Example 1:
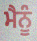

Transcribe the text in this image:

ਮੈਨੂੰ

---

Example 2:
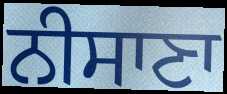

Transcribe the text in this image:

ਨੀਸਾਣਾ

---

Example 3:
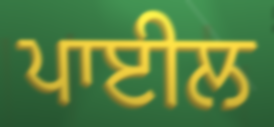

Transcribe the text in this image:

ਪਾਈਲ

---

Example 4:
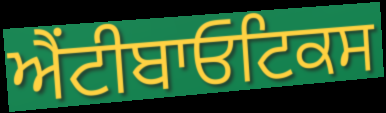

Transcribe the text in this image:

ਐਂਟੀਬਾਓਟਿਕਸ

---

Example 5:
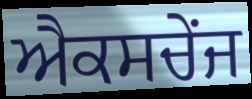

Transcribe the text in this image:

ਐਕਸਚੇਂਜ